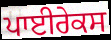
ਪਾਈਰੇਕਸ